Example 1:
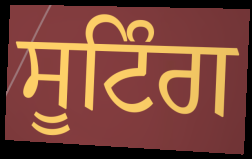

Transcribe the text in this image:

ਸੂਟਿੰਗ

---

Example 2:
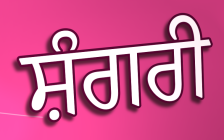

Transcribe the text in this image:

ਸ਼ੰਗਰੀ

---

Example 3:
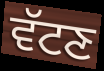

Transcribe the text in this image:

ਵੱਟਣ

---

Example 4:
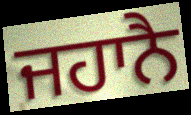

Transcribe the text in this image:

ਜਹਾਨੈ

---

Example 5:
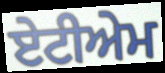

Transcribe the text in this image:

ਏਟੀਅੇਮ